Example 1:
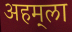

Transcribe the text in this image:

अहम्‌ला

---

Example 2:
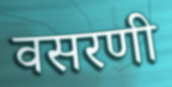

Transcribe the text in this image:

वसरणी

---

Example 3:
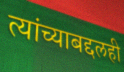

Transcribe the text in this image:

त्यांच्याबद्दलही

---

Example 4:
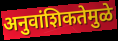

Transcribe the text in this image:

अनुवांशिकतेमुळे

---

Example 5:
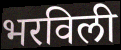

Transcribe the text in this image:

भरविली